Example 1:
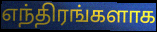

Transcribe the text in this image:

எந்திரங்களாக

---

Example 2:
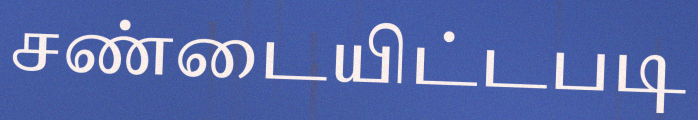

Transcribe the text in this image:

சண்டையிட்டபடி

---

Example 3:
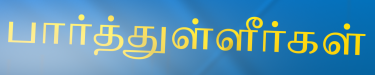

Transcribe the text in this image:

பார்த்துள்ளீர்கள்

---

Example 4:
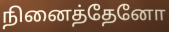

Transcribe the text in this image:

நினைத்தேனோ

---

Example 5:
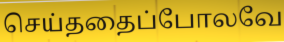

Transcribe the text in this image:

செய்ததைப்போலவே